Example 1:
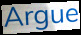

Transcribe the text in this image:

Argue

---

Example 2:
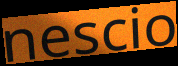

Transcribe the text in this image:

nescio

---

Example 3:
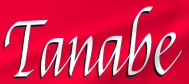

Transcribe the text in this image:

Tanabe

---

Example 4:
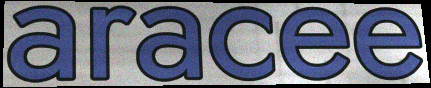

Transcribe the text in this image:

aracee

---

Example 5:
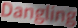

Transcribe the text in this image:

Dangling